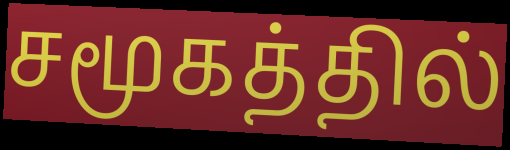
சமூகத்தில்